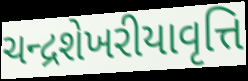
ચન્દ્રશેખરીયાવૃત્તિ